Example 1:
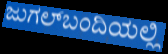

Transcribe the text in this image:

ಜುಗಲ್‌ಬಂದಿಯಲ್ಲಿ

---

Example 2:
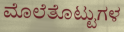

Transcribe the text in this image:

ಮೊಲೆತೊಟ್ಟುಗಳ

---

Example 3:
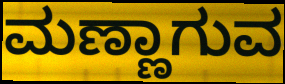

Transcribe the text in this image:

ಮಣ್ಣಾಗುವ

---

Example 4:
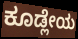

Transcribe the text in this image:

ಕೂಡ್ಲೇಯ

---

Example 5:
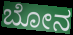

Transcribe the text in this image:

ಬೋನ